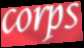
corps